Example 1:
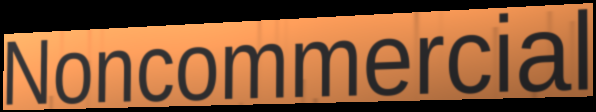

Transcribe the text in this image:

Noncommercial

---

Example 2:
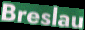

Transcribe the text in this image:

Breslau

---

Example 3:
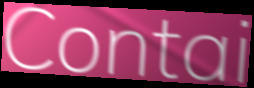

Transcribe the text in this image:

Contai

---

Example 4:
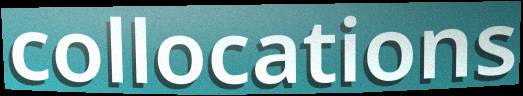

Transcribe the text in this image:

collocations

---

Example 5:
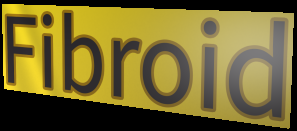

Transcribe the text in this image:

Fibroid